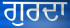
ਗੁਰਦਾ